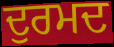
ਦੁਰਮਦ